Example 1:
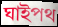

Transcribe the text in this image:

ঘাইপথ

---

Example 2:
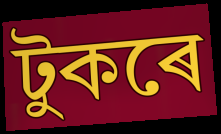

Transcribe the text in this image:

টুকৰে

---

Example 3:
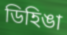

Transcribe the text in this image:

ডিহিঙা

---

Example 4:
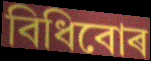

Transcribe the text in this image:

বিধিবোৰ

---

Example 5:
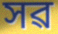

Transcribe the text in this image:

সৱ